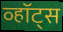
व्हॉट्स